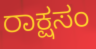
ರಾಕ್ಷಸಂ